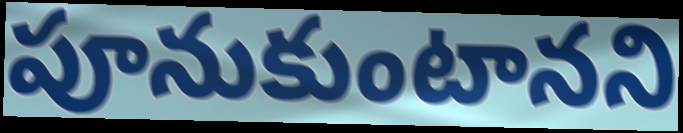
పూనుకుంటానని